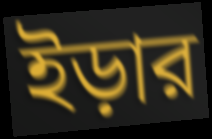
ইড়ার